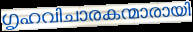
ഗൃഹവിചാരകന്മാരായി